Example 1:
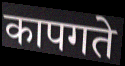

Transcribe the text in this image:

कापगते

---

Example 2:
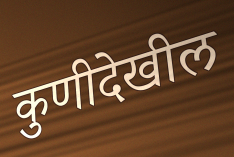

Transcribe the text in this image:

कुणीदेखील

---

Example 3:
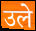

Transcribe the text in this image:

उले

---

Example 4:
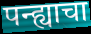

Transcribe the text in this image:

पन्ह्याचा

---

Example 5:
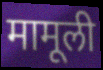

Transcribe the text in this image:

मामूली